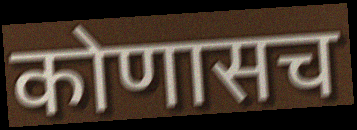
कोणासच